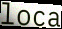
loca